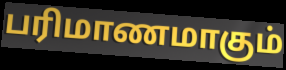
பரிமாணமாகும்